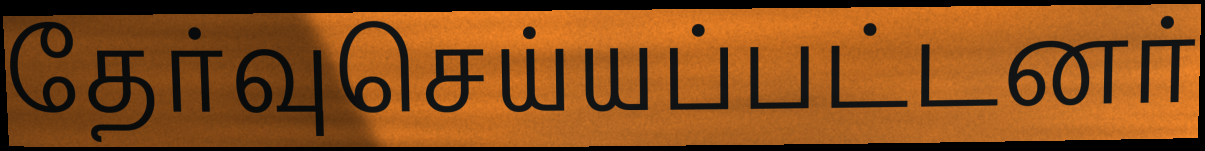
தேர்வுசெய்யப்பட்டனர்